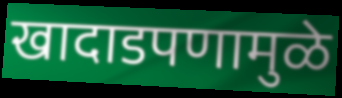
खादाडपणामुळे